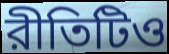
রীতিটিও